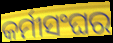
କର୍ମୀସଂଘର